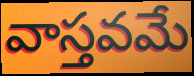
వాస్తవమే